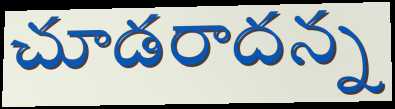
చూడరాదన్న